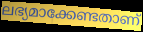
ലഭ്യമാക്കേണ്ടതാണ്